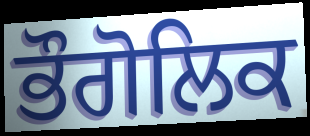
ਭੌਗੋਲਿਕ